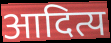
आदित्य